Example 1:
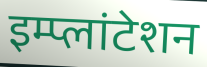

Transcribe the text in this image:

इम्प्लांटेशन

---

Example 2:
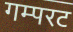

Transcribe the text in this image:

गम्परट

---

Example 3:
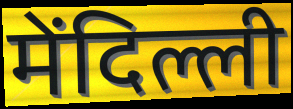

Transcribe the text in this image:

मेंदिल्ली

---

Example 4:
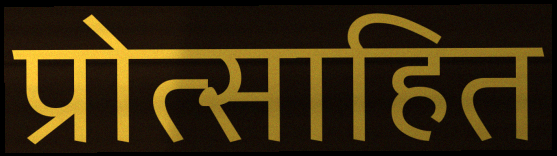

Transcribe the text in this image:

प्रोत्‍साहित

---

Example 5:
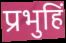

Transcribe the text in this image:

प्रभुहिं